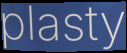
plasty